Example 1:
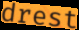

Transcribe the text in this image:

drest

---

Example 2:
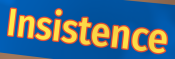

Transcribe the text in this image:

Insistence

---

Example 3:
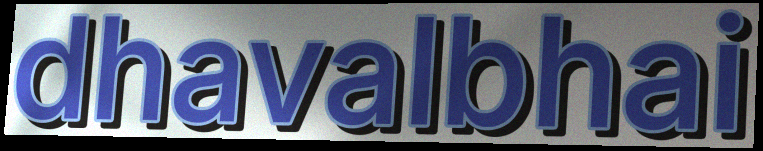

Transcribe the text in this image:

dhavalbhai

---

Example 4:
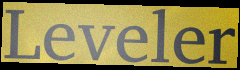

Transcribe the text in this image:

Leveler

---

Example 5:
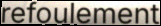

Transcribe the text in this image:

refoulement